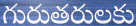
గురుతరులకు